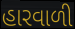
હારવાળી